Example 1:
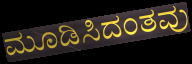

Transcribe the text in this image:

ಮೂಡಿಸಿದಂತವು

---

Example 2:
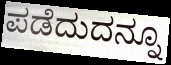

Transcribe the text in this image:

ಪಡೆದುದನ್ನೂ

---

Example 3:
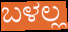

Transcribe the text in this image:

ಬಳಲ್ಲ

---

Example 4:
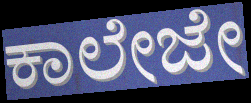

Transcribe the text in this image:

ಕಾಲೇಜೇ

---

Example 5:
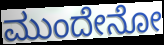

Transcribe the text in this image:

ಮುಂದೇನೋ